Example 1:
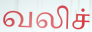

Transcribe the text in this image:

வலிச்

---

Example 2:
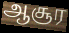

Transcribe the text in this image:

ஆசூர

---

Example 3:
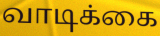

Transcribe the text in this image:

வாடிக்கை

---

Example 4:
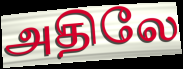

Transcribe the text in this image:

அதிலே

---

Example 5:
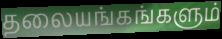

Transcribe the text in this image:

தலையங்கங்களும்